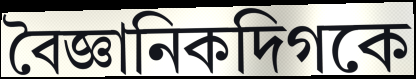
বৈজ্ঞানিকদিগকে